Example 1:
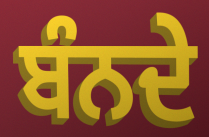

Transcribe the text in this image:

ਬੰਨਦੇ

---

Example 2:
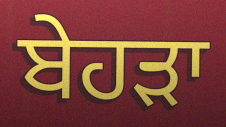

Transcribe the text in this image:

ਬੇਹੜਾ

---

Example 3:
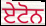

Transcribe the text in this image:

ਏਟੋਨ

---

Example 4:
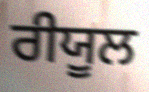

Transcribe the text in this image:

ਰੀਯੂਲ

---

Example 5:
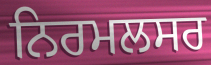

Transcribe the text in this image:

ਨਿਰਮਲਸਰ